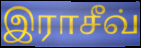
இராசீவ்